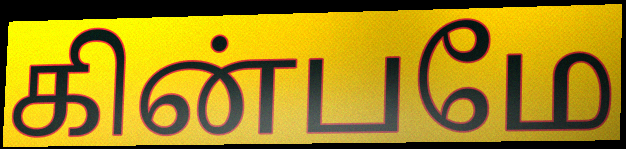
கின்பமே